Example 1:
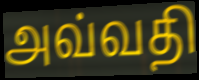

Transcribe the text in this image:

அவ்வதி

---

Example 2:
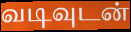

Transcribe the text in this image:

வடிவுடன்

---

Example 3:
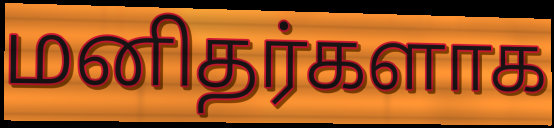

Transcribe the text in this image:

மனிதர்களாக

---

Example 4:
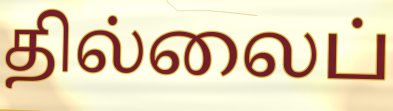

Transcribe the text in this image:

தில்லைப்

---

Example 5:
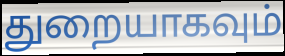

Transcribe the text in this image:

துறையாகவும்